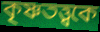
কৃষ্ণতত্ত্বকে